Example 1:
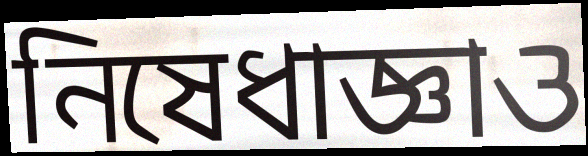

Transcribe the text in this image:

নিষেধাজ্ঞাও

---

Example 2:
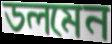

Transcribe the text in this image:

ডলমেন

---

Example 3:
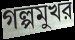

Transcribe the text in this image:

গল্পমুখর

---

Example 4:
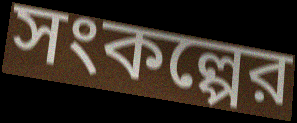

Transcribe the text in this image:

সংকল্পের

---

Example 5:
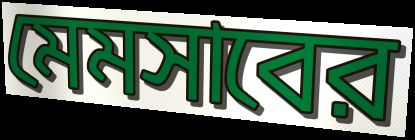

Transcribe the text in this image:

মেমসাবের